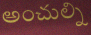
అంచుల్ని